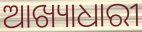
ଆଖ୍ୟାଧାରୀ